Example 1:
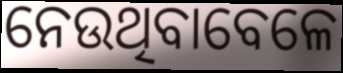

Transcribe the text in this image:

ନେଉଥିବାବେଳେ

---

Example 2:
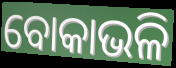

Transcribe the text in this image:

ବୋକାଭଳି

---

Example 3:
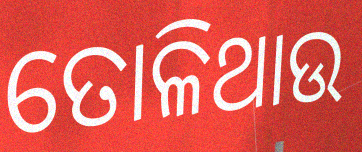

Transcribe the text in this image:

ତୋଳିଥାଉ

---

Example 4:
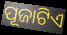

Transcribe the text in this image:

ପୂଜାଟିଏ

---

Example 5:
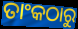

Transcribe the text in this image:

ତାଂକଠାରୁ